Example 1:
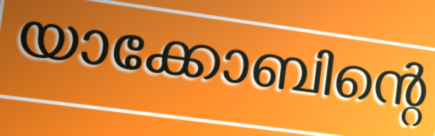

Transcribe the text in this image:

യാക്കോബിന്റെ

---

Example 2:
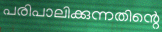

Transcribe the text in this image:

പരിപാലിക്കുന്നതിന്റെ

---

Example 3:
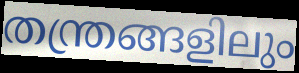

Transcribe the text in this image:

തന്ത്രങ്ങളിലും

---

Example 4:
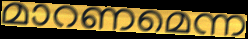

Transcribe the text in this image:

മാറണമെന്ന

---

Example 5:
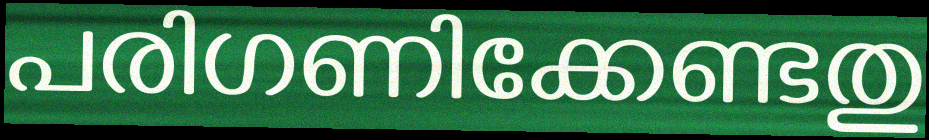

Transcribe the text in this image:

പരിഗണിക്കേണ്ടതു